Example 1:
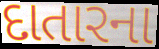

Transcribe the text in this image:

દાતારના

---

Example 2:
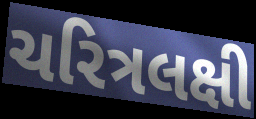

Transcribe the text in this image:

ચરિત્રલક્ષી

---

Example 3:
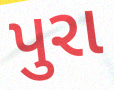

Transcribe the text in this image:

પુરા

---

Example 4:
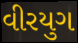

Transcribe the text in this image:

વીરયુગ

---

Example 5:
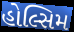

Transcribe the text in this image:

હોલ્સિમ